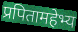
प्रपितामहेभ्य